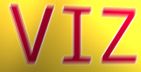
VIZ